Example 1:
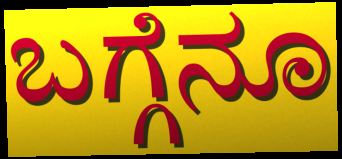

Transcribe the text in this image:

ಬಗ್ಗೆನೂ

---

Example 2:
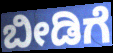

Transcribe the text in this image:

ಬೀಡಿಗೆ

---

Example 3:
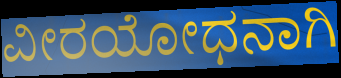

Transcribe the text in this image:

ವೀರಯೋಧನಾಗಿ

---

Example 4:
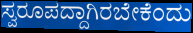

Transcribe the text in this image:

ಸ್ವರೂಪದ್ದಾಗಿರಬೇಕೆಂದು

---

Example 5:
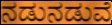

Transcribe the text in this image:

ನಡುನಡುವೆ